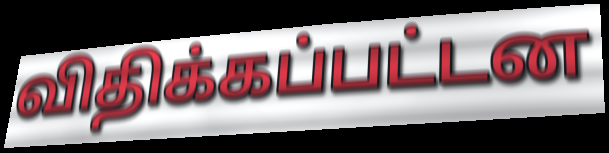
விதிக்கப்பட்டன